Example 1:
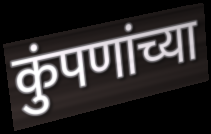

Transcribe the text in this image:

कुंपणांच्या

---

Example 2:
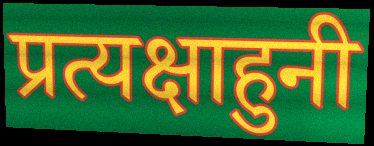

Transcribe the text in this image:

प्रत्यक्षाहुनी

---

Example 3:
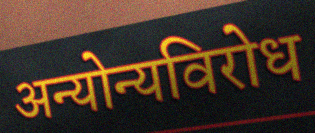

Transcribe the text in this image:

अन्योन्यविरोध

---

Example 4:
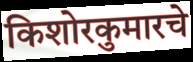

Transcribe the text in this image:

किशोरकुमारचे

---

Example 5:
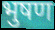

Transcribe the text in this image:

भुषण